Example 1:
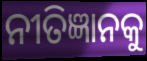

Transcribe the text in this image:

ନୀତିଜ୍ଞାନକୁ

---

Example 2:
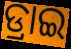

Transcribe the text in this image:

ଡ୍ରାଇ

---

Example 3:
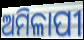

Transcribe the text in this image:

ଅମିଳାପୀ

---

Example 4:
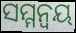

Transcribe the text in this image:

ସମ୍ମନ୍ୱୟ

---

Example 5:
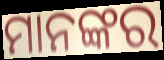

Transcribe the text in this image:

ମାନଙ୍କର